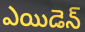
ఎయిడెన్